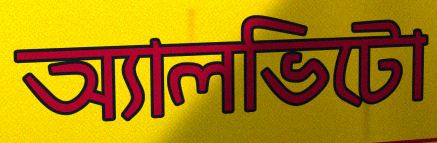
অ্যালভিটো